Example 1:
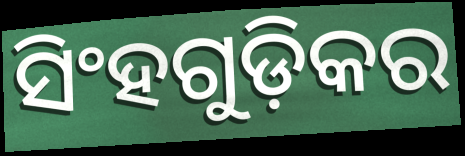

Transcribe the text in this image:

ସିଂହଗୁଡ଼ିକର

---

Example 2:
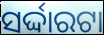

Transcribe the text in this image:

ସର୍ଦ୍ଦାରଟା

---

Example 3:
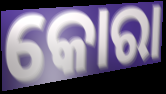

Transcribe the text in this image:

କୋରା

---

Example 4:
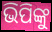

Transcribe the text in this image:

ଭିପିଙ୍କୁ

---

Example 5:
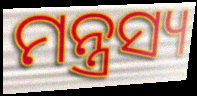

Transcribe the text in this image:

ମନ୍ତ୍ରସ୍ୟ